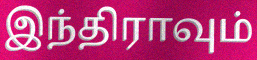
இந்திராவும்